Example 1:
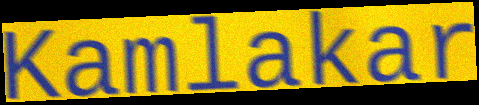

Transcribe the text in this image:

Kamlakar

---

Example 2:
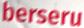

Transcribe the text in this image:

berseru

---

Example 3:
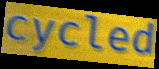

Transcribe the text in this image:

cycled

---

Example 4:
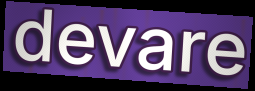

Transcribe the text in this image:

devare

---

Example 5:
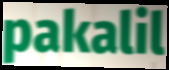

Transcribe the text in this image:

pakalil